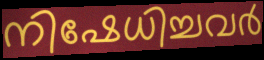
നിഷേധിച്ചവർ